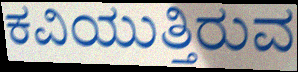
ಕವಿಯುತ್ತಿರುವ